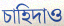
চাহিদাও